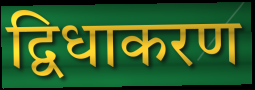
द्विधाकरण